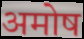
अमोष